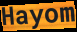
Hayom